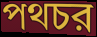
পথচর